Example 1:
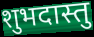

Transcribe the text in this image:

शुभदास्तु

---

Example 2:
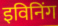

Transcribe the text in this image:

इविनिंग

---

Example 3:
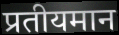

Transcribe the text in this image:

प्रतीयमान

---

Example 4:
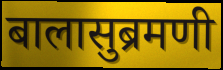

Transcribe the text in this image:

बालासुब्रमणी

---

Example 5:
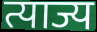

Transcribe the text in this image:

त्याज्य